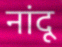
नांदू